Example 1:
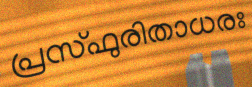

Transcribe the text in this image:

പ്രസ്ഫുരിതാധരഃ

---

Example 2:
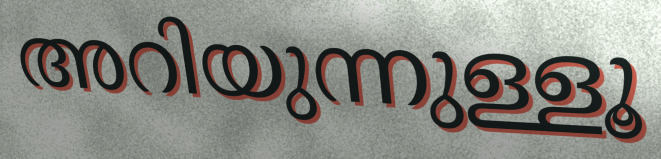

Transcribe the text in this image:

അറിയുന്നുള്ളൂ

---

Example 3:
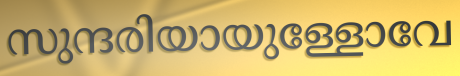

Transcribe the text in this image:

സുന്ദരിയായുള്ളോവേ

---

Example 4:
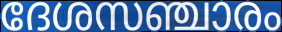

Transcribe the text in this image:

ദേശസഞ്ചാരം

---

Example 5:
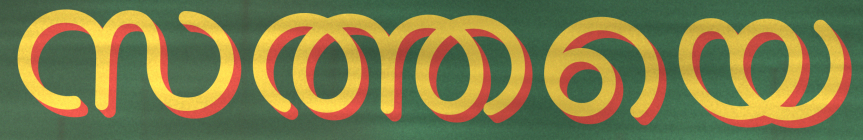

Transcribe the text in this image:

സത്തയെ